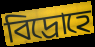
বিদ্রোহে